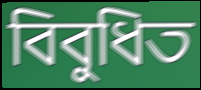
বিবুধিত